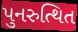
પુનરુત્થિત